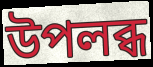
উপলব্ধ